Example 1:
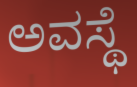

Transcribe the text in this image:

ಅವಸ್ಥೆ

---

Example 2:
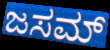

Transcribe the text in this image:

ಜಸಮ್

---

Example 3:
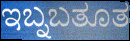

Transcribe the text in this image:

ಇಬ್ನಬತೂತ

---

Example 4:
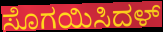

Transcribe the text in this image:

ಸೊಗಯಿಸಿದಳ್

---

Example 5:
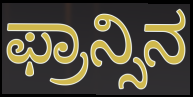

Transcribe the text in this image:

ಫ್ರಾನ್ಸಿನ